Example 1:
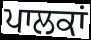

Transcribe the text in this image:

ਪਾਲਕਾਂ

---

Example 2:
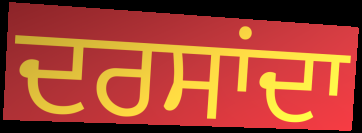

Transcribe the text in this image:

ਦਰਸਾਂਦਾ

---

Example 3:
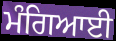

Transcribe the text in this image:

ਮੰਗਿਆਈ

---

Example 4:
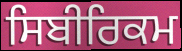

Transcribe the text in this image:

ਸਿਬੀਰਿਕਮ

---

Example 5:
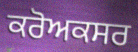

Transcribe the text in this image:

ਕਰੋਅਕਸਰ